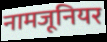
नामजूनियर